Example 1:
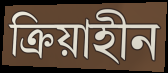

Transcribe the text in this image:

ক্রিয়াহীন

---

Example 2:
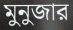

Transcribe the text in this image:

মুনুজার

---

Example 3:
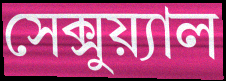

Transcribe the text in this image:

সেক্সুয়্যাল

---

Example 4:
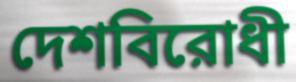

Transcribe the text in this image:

দেশবিরোধী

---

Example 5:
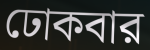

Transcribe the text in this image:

ঢোকবার